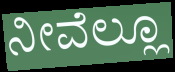
ನೀವೆಲ್ಲೂ